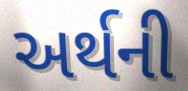
અર્થની